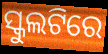
ସ୍କୁଲଟିରେ